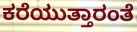
ಕರೆಯುತ್ತಾರಂತೆ